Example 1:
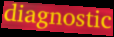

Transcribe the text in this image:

diagnostic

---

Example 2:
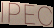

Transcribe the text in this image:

IPEC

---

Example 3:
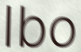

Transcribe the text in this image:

Ibo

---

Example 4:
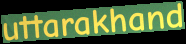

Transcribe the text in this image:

uttarakhand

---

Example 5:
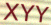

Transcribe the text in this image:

XYY